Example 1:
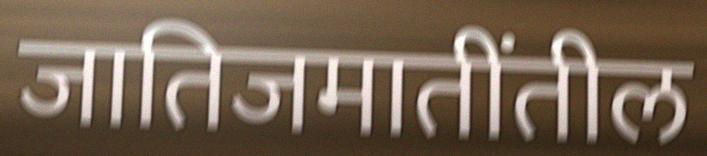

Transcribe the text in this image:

जातिजमातींतील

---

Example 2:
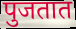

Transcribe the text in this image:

पुजतात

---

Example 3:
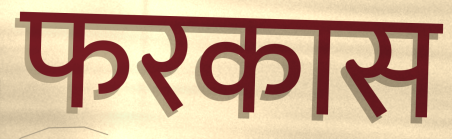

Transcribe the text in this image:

फरकास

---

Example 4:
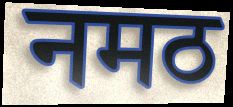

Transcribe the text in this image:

नमठ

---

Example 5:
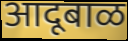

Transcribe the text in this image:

आदूबाळ